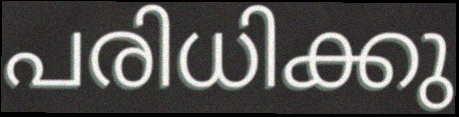
പരിധിക്കു